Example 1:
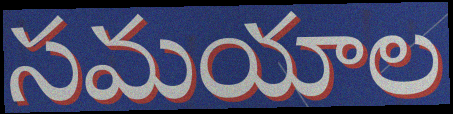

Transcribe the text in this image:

సమయాల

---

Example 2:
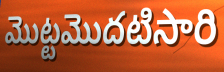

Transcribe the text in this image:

మొట్టమొదటిసారి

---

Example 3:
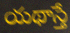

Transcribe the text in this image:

యథాస్తే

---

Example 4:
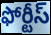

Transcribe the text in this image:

ఫోర్టీస్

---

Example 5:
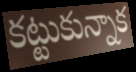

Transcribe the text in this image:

కట్టుకున్నాక